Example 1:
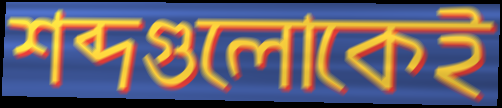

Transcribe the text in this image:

শব্দগুলোকেই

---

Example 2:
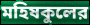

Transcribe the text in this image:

মহিষকুলের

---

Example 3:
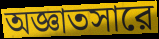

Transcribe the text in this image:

অজ্ঞাতসারে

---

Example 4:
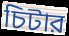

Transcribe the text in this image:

চিটার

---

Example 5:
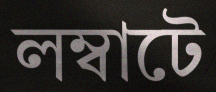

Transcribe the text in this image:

লম্বাটে